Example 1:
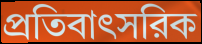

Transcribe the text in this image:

প্রতিবাৎসরিক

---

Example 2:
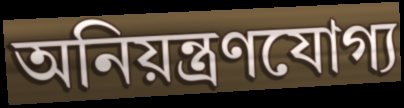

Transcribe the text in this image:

অনিয়ন্ত্রণযোগ্য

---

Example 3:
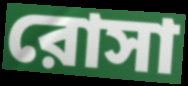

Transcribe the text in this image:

রোসা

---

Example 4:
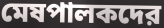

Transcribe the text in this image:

মেষপালকদের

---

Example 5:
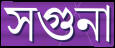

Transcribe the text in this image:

সগুনা